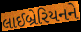
લાઈબ્રેરિયનને